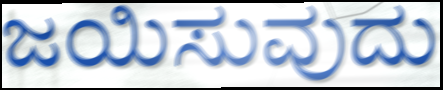
ಜಯಿಸುವುದು